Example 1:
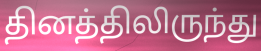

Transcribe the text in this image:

தினத்திலிருந்து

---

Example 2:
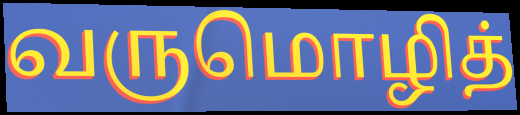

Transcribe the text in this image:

வருமொழித்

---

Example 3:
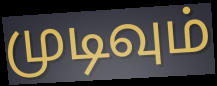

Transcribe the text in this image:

முடிவும்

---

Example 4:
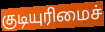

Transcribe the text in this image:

குடியுரிமைச்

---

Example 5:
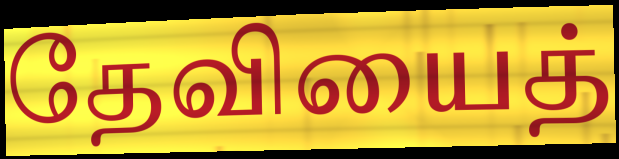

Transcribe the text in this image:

தேவியைத்